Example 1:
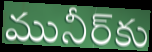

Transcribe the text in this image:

మునీర్‌కు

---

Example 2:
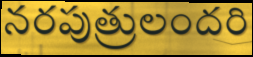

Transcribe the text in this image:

నరపుత్రులందరి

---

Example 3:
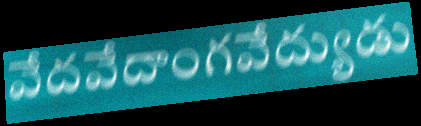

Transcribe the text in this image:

వేదవేదాంగవేద్యుడు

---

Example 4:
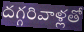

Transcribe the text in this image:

దగ్గరివాళ్లతో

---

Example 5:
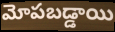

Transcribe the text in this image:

మోపబడ్డాయి